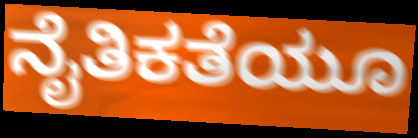
ನೈತಿಕತೆಯೂ